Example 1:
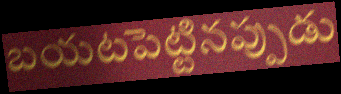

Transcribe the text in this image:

బయటపెట్టినప్పుడు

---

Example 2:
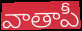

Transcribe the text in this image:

వాతాపీ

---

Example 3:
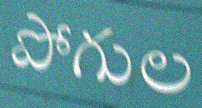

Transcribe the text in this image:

పోగుల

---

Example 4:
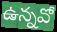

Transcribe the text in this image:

ఉన్నవో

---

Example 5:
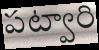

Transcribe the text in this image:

పట్వారి